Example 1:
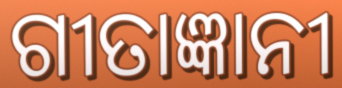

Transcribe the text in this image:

ଗୀତାଜ୍ଞାନୀ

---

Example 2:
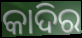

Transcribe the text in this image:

କାଦିର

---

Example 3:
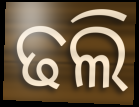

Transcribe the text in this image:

ଢଲି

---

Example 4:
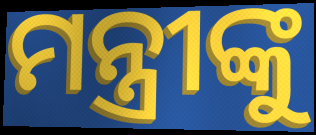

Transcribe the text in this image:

ମନ୍ତ୍ରୀଙ୍କୁ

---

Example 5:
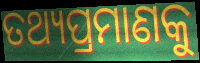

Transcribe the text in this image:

ତଥ୍ୟପ୍ରମାଣକୁ